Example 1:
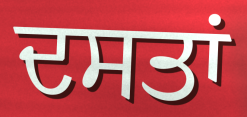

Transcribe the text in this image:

ਦਸਤਾਂ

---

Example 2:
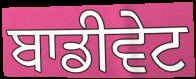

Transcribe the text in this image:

ਬਾਡੀਵੇਟ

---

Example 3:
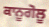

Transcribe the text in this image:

ਕਾਨੂਗੋਲੂ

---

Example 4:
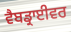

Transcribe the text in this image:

ਵੈਬਡ੍ਰਾਈਵਰ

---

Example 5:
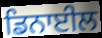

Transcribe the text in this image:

ਡਿਨਾਈਲ